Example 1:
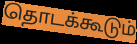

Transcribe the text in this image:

தொடக்கூடும்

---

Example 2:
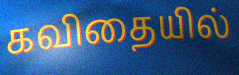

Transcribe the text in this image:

கவிதையில்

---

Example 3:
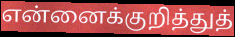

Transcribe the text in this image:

என்னைக்குறித்துத்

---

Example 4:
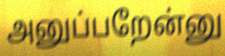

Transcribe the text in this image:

அனுப்பறேன்னு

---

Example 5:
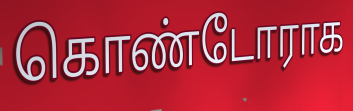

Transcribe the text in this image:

கொண்டோராக